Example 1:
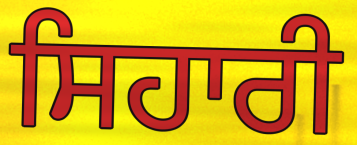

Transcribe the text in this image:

ਸਿਹਾਰੀ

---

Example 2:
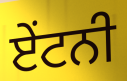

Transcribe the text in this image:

ਏਂਟਨੀ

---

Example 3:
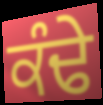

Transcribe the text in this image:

ਕੰਢੇ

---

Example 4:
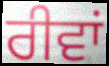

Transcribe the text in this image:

ਰੀਵਾਂ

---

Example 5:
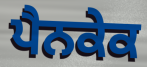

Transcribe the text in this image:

ਪੈਨਕੇਕ